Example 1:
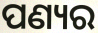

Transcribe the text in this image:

ପଣ୍ୟର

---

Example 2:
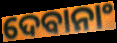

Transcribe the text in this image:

ଦେବାନାଂ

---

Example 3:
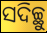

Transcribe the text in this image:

ସଦିଚ୍ଛୁ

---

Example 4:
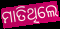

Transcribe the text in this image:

ମାତିଥିଲେ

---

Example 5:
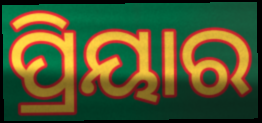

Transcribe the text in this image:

ପ୍ରିୟାର